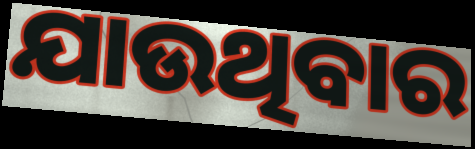
ଯାଉଥିବାର